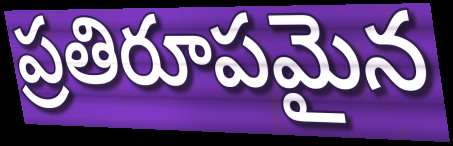
ప్రతిరూపమైన